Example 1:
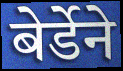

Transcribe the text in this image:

बेर्डेने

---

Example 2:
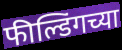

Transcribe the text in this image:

फील्डिंगच्या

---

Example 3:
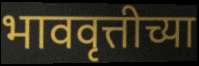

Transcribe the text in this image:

भाववृत्तीच्या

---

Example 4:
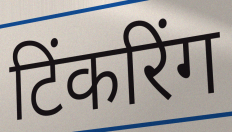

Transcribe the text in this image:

टिंकरिंग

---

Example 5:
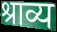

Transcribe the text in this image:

श्राव्य